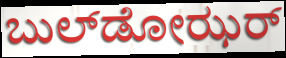
ಬುಲ್‌ಡೋಝರ್